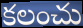
కలంచు